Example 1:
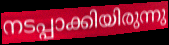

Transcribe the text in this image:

നടപ്പാക്കിയിരുന്നു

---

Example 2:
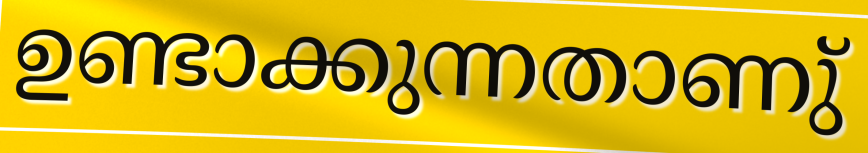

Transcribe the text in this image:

ഉണ്ടാക്കുന്നതാണു്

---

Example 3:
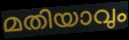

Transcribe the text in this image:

മതിയാവും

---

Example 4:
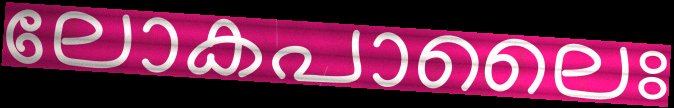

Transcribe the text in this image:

ലോകപാലൈഃ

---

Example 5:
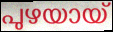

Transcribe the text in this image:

പുഴയായ്